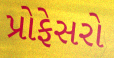
પ્રોફેસરો